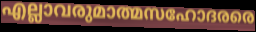
എല്ലാവരുമാത്മസഹോദരരെ